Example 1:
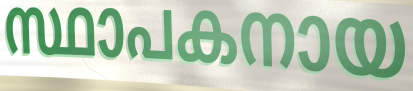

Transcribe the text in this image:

സ്ഥാപകനായ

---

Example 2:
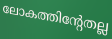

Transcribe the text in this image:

ലോകത്തിന്റേതല്ല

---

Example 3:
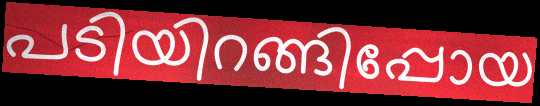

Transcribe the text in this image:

പടിയിറങ്ങിപ്പോയ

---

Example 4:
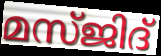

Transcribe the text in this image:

മസ്ജിദ്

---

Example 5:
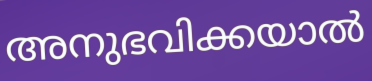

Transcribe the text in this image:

അനുഭവിക്കയാൽ